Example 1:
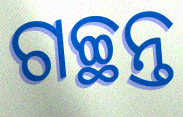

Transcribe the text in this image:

ଗଚ୍ଛନ୍ତ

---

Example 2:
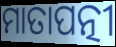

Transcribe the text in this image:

ମାତାପତ୍ନୀ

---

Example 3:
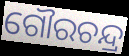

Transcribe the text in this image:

ଗୌରଚନ୍ଦ୍ର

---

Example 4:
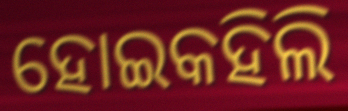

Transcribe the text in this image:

ହୋଇକହିଲି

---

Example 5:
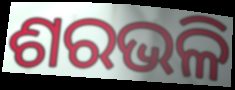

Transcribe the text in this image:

ଶରଭଳି